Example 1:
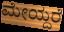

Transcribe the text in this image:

ಮೇಯ್ದರೆ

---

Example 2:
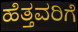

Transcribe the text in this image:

ಹೆತ್ತವರಿಗೆ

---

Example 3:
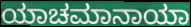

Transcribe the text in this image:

ಯಾಚಮಾನಾಯಾ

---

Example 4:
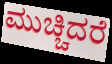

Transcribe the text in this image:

ಮುಚ್ಚಿದರೆ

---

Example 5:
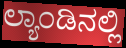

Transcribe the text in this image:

ಲ್ಯಾಂಡಿನಲ್ಲಿ